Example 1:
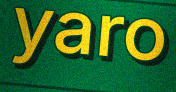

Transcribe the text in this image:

yaro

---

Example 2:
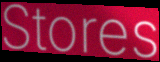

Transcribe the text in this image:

Stores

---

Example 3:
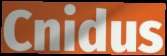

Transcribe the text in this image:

Cnidus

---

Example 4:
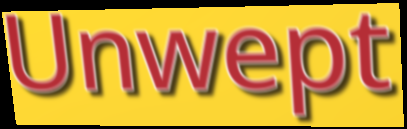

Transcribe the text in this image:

Unwept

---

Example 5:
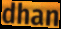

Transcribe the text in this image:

dhan